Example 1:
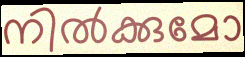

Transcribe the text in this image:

നിൽക്കുമോ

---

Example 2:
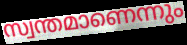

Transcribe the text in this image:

സ്വന്തമാണെന്നും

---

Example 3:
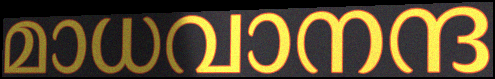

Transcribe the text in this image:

മാധവാനന്ദ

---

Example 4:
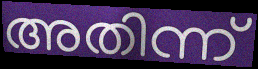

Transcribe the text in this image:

അതിന്ന്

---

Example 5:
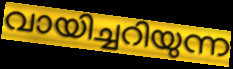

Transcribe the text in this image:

വായിച്ചറിയുന്ന